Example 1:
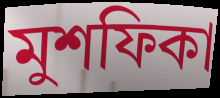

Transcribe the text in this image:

মুশফিকা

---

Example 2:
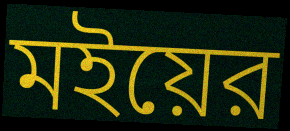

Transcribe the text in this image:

মইয়ের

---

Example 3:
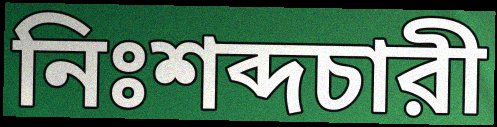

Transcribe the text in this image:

নিঃশব্দচারী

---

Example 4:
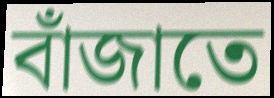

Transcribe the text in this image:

বাঁজাতে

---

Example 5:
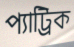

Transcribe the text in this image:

প্যাট্রিক